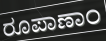
ರೂಪಾಣಾಂ